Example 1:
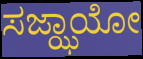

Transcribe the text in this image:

ಸಜ್ಝಾಯೋ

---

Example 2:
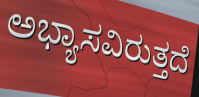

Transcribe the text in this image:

ಅಭ್ಯಾಸವಿರುತ್ತದೆ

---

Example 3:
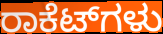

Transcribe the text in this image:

ರಾಕೆಟ್‌ಗಳು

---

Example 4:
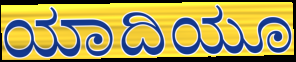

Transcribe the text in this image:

ಯಾದಿಯೂ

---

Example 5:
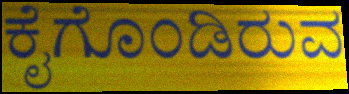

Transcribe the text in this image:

ಕೈಗೊಂಡಿರುವ